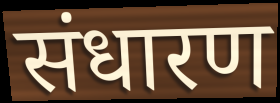
संधारण